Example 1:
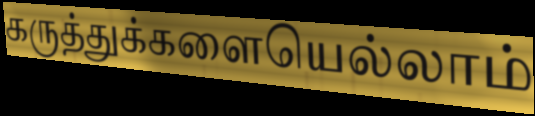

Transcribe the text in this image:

கருத்துக்களையெல்லாம்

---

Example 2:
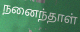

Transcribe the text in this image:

நனைந்தாள்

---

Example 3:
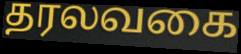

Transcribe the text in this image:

தரலவகை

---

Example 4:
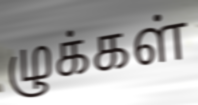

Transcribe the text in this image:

ழுக்கள்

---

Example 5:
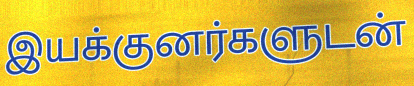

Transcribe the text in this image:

இயக்குனர்களுடன்